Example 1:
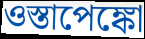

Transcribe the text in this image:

ওস্তাপেঙ্কো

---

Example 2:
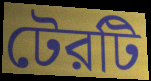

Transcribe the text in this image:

টেরটি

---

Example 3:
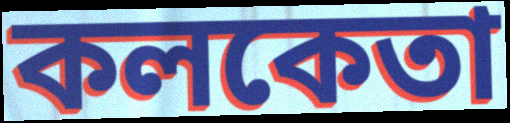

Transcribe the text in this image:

কলকেতা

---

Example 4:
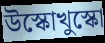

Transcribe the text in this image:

উস্কোখুস্কো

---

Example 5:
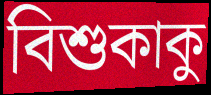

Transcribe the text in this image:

বিশুকাকু